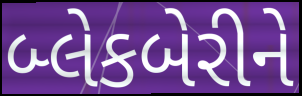
બ્લેકબેરીને